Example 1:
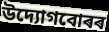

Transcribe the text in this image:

উদ্যোগবোৰৰ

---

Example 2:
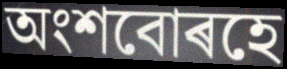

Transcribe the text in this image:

অংশবোৰহে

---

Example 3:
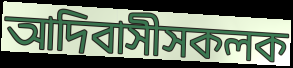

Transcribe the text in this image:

আদিবাসীসকলক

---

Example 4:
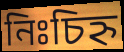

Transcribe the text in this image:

নিঃচিহ্ন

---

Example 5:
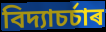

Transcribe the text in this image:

বিদ্যাচৰ্চাৰ